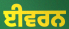
ਈਵਰਨ